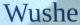
Wushe